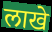
लाखे